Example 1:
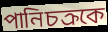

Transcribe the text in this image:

পানিচক্রকে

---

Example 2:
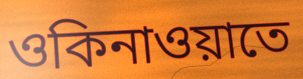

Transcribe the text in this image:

ওকিনাওয়াতে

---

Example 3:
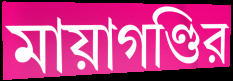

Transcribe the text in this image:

মায়াগণ্ডির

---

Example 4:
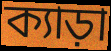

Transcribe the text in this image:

ক্যাড়া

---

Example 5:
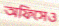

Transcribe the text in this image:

অফিসেও